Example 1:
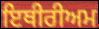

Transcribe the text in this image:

ਇਥੀਰੀਅਮ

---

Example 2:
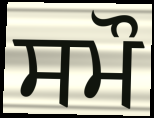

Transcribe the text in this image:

ਸਮੌ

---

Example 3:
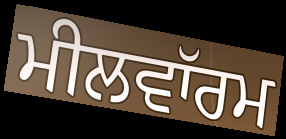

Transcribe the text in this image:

ਮੀਲਵਾੱਰਮ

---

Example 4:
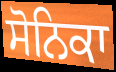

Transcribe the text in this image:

ਸੋਨਿਕਾ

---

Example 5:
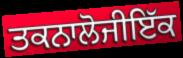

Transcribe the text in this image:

ਤਕਨਾਲੋਜੀਇੱਕ